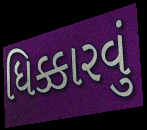
ધિક્કારવું